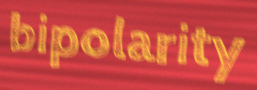
bipolarity